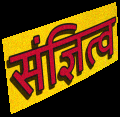
संज्ञित्व